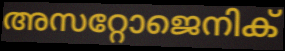
അസറ്റോജെനിക്